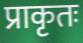
प्राकृतः